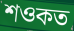
শওকত